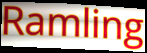
Ramling